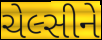
ચેલ્સીને